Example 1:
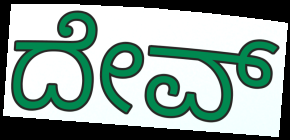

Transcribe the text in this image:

ದೇವ್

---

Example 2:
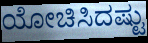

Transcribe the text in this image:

ಯೋಚಿಸಿದಷ್ಟು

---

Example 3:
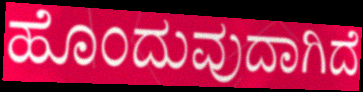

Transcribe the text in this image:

ಹೊಂದುವುದಾಗಿದೆ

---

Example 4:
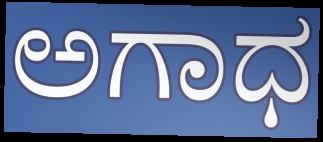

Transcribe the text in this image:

ಅಗಾಧ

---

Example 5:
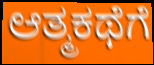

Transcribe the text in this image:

ಆತ್ಮಕಥೆಗೆ